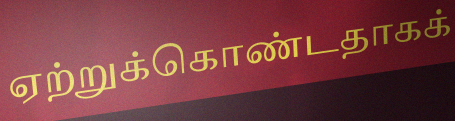
ஏற்றுக்கொண்டதாகக்